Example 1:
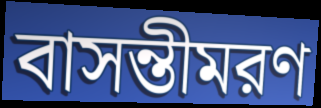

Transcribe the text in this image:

বাসন্তীমরণ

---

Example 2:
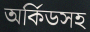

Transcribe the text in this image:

অর্কিডসহ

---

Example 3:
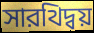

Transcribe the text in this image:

সারথিদ্বয়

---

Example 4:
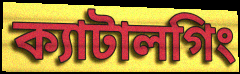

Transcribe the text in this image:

ক্যাটালগিং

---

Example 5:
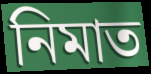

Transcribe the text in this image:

নিমাত